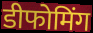
डीफोमिंग